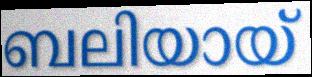
ബലിയായ്